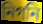
নিগনি